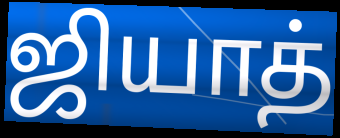
ஜியாத்